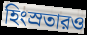
হিংস্রতারও